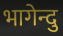
भागेन्दु